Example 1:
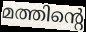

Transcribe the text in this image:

മത്തിന്റെ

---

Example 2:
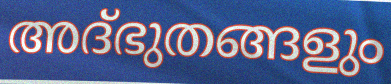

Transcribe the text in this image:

അദ്ഭുതങ്ങളും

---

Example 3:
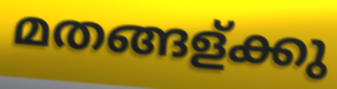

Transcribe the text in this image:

മതങ്ങള്ക്കു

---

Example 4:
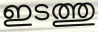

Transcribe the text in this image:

ഇടത്തു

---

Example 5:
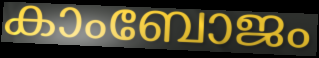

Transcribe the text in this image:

കാംബോജം